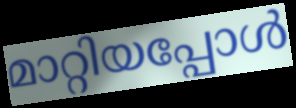
മാറ്റിയപ്പോൾ